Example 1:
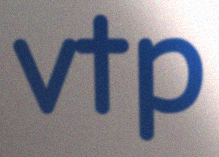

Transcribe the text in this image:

vtp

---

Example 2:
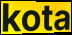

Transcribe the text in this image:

kota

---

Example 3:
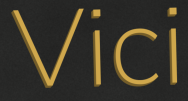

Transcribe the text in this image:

Vici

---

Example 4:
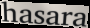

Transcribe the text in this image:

hasara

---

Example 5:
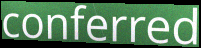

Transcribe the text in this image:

conferred